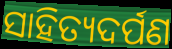
ସାହିତ୍ୟଦର୍ପଣ